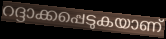
റദ്ദാക്കപ്പെടുകയാണ്